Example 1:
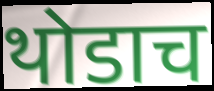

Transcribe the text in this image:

थोडाच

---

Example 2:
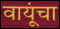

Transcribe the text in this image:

वायूंचा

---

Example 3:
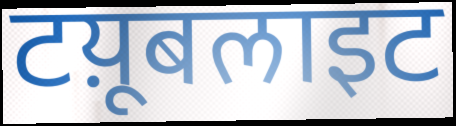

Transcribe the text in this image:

टय़ूबलाइट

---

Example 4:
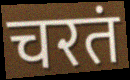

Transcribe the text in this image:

चरतं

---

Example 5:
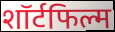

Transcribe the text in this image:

शॉर्टफिल्म